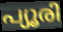
പ്യൂരി